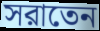
সরাতেন